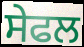
ਸੇਫਲ